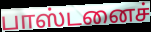
பாஸ்டனைச்